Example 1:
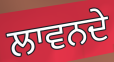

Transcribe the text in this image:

ਲਾਵਨਦੇ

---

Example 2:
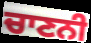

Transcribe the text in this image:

ਚਾਣਨੀ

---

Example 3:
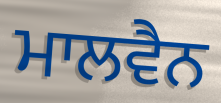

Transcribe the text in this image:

ਮਾਲਵੈਨ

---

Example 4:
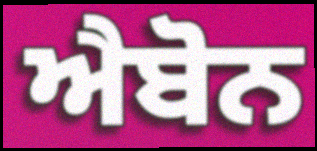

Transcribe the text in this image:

ਐਬੋਨ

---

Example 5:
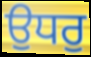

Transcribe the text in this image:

ਉਧਰੁ